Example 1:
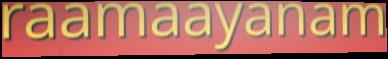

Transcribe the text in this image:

raamaayanam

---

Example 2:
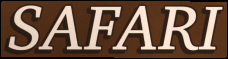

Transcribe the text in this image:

SAFARI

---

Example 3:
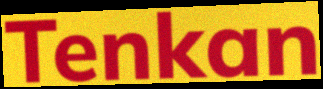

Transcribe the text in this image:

Tenkan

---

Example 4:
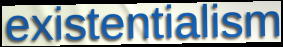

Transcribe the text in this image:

existentialism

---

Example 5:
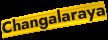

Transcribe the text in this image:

Changalaraya